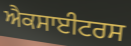
ਐਕਸਾਈਟਰਸ